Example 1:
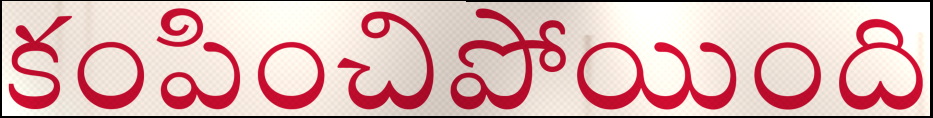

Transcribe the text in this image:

కంపించిపోయింది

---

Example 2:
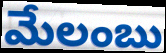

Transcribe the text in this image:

మేలంబు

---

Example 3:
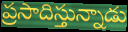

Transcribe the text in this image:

ప్రసాదిస్తున్నాడు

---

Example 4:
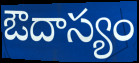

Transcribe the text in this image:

ఔదాస్యం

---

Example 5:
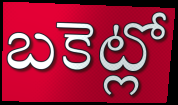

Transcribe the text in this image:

బకెట్లో